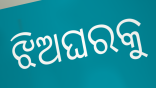
ଝିଅଘରକୁ